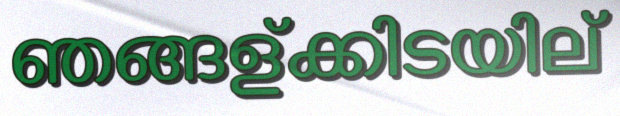
ഞങ്ങള്ക്കിടയില്